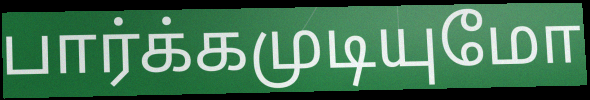
பார்க்கமுடியுமோ